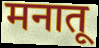
मनातू